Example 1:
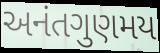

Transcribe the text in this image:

અનંતગુણમય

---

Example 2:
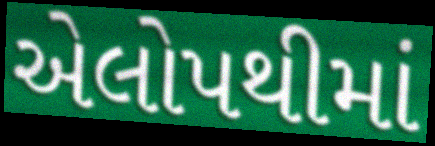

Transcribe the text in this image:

એલોપથીમાં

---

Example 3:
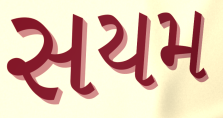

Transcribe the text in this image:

સયમ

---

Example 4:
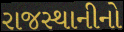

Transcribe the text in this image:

રાજસ્થાનીનો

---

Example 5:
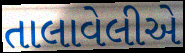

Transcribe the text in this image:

તાલાવેલીએ